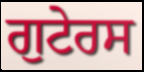
ਗੁਟੇਰਸ